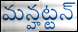
మన్హట్టన్